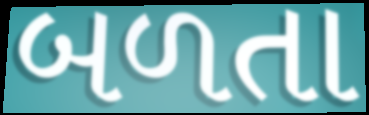
બળતા